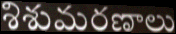
శిశుమరణాలు